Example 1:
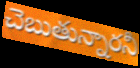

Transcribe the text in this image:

చెబుతున్నారనీ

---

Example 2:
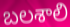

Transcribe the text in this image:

బలశాలి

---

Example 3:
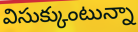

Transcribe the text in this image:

విసుక్కుంటున్నా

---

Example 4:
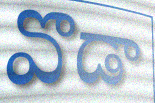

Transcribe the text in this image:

వొడా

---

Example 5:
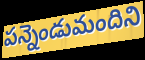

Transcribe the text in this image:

పన్నెండుమందిని